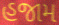
હજામ